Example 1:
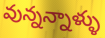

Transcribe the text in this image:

వున్నన్నాళ్ళు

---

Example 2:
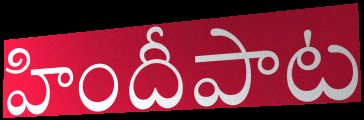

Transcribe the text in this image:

హిందీపాట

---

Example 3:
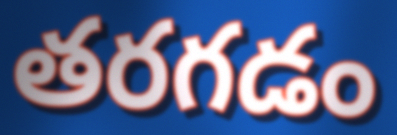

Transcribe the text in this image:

తరగడం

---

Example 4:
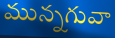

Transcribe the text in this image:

మున్నగువా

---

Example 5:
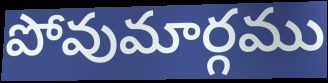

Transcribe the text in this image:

పోవుమార్గము